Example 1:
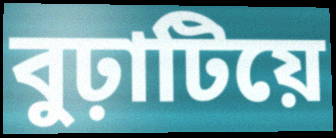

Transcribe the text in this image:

বুঢ়াটিয়ে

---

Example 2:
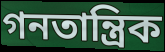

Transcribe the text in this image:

গনতান্ত্ৰিক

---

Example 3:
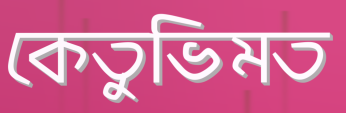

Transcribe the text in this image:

কেতুভিমত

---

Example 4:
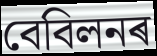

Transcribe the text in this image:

বেবিলনৰ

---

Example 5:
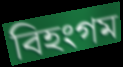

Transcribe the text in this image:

বিহংগম